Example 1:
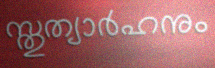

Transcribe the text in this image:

സ്തുത്യാർഹനും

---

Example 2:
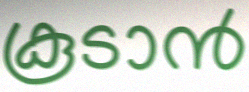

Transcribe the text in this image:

കൂടാൻ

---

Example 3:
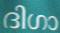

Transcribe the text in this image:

ദിഗാ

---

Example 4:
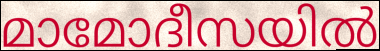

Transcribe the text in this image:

മാമോദീസയിൽ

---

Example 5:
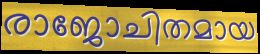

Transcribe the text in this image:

രാജോചിതമായ